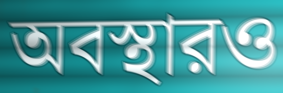
অবস্থারও